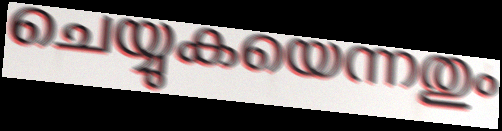
ചെയ്യുകയെന്നതും